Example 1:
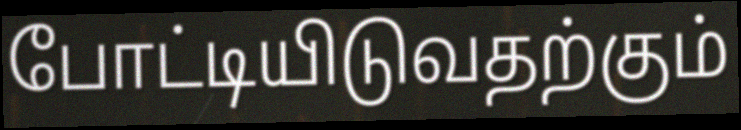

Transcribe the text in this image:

போட்டியிடுவதற்கும்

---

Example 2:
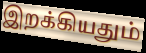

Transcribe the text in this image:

இறக்கியதும்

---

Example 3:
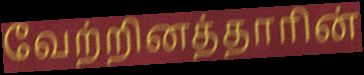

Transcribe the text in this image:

வேற்றினத்தாரின்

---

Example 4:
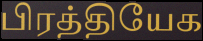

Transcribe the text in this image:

பிரத்தியேக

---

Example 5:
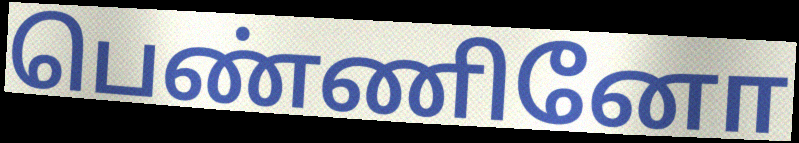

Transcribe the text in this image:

பெண்ணினோ